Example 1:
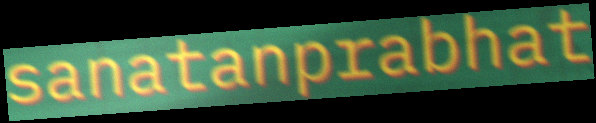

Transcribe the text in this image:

sanatanprabhat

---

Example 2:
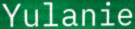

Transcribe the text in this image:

Yulanie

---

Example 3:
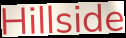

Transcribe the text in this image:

Hillside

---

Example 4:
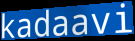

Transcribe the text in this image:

kadaavi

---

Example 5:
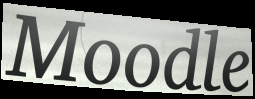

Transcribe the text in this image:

Moodle